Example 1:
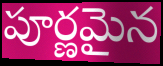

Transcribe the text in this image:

పూర్ణమైన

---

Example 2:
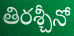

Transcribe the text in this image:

తిరశ్చీనో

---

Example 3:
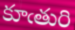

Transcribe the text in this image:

కూఁతురి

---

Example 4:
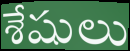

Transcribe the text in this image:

శేషులు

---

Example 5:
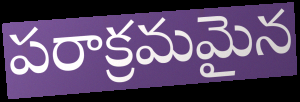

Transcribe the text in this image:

పరాక్రమమైన